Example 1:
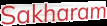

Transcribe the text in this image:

Sakharam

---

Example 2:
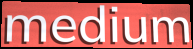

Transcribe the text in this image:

medium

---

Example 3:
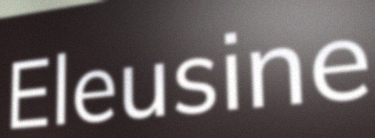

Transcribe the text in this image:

Eleusine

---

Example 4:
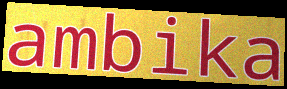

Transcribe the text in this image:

ambika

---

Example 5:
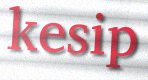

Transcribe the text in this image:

kesip